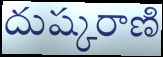
దుష్కరాణి